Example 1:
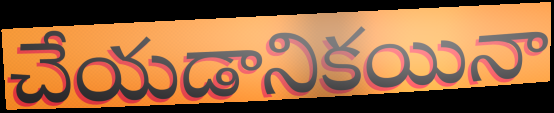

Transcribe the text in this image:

చేయడానికయినా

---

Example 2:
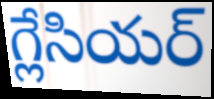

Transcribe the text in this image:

గ్లేసియర్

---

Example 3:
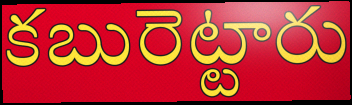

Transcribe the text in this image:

కబురెట్టారు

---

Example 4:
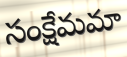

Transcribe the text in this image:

సంక్షేమమా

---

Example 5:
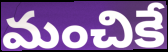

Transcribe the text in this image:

మంచికే